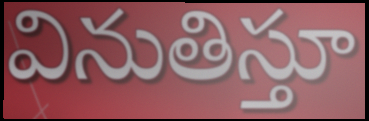
వినుతిస్తూ